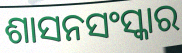
ଶାସନସଂସ୍କାର